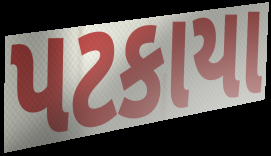
પટકાયા